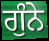
ਗੁੰਨੇ